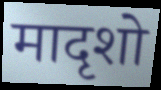
मादृशो